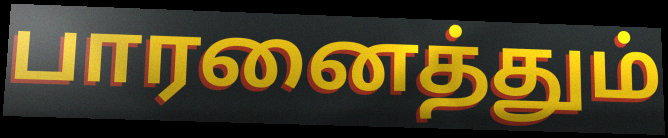
பாரனைத்தும்